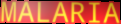
MALARIA